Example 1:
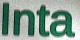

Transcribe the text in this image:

Inta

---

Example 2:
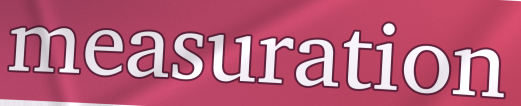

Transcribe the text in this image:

measuration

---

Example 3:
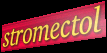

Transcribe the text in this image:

stromectol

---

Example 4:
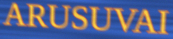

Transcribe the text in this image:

ARUSUVAI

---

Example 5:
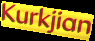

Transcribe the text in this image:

Kurkjian